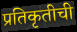
प्रतिकृतीची